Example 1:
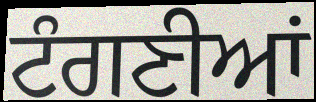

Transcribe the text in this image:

ਟੰਗਣੀਆਂ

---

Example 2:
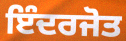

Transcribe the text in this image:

ਇੰਦਰਜੋਤ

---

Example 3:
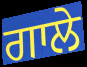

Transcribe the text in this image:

ਗਾਲੇ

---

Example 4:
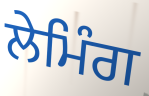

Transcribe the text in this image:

ਲੇਮਿੰਗ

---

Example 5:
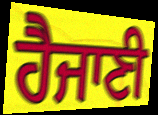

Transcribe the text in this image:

ਹੈਜਾਣੀ